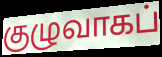
குழுவாகப்